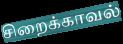
சிறைக்காவல்